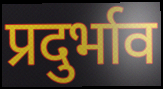
प्रदुर्भाव